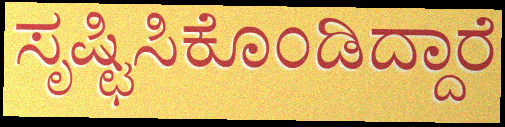
ಸೃಷ್ಟಿಸಿಕೊಂಡಿದ್ದಾರೆ